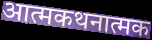
आत्मकथनात्मक